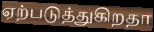
ஏற்படுத்துகிறதா